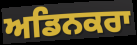
ਅਡਿਨਕਰਾ